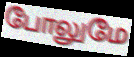
போலுமே